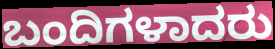
ಬಂದಿಗಳಾದರು